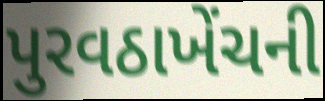
પુરવઠાખેંચની